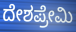
ದೇಶಪ್ರೇಮಿ